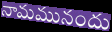
నామమునందు